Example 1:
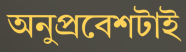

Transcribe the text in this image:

অনুপ্রবেশটাই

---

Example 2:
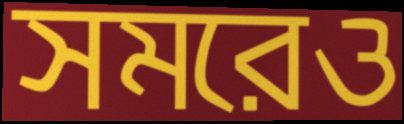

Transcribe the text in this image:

সমরেও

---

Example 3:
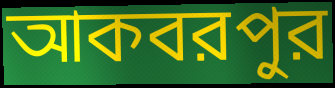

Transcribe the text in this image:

আকবরপুর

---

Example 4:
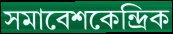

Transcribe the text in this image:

সমাবেশকেন্দ্রিক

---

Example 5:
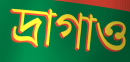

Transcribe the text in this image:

দ্রাগাও